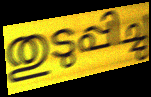
തുടുപ്പിച്ചു